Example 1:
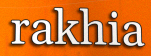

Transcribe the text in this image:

rakhia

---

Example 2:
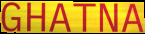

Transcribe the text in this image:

GHATNA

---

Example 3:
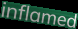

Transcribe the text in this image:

inflamed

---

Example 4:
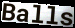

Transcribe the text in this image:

Balls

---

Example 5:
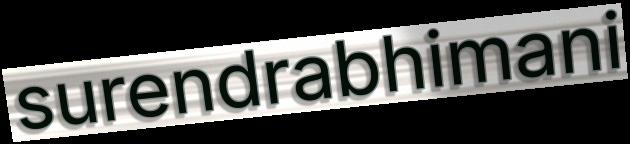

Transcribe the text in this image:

surendrabhimani